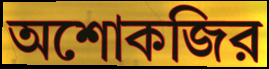
অশোকজির